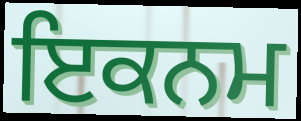
ਇਕਨਮ